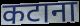
कटाना